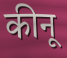
कीनू